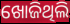
ଖୋଜିଥିଲି